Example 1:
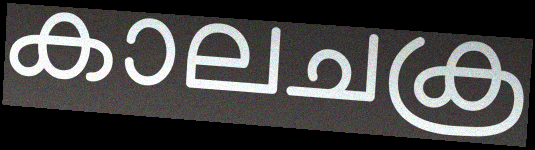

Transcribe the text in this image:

കാലചക്ര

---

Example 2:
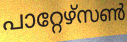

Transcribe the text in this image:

പാറ്റേഴ്സൺ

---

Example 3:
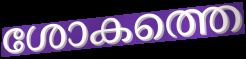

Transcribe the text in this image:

ശോകത്തെ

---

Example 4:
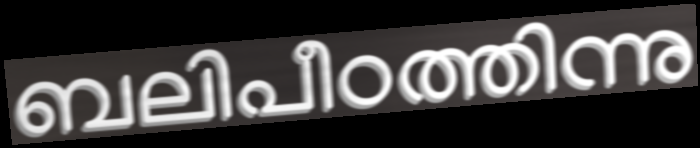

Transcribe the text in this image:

ബലിപീഠത്തിന്നു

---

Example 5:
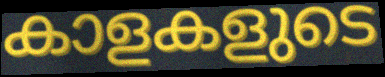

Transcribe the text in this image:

കാളകളുടെ